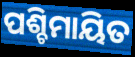
ପଶ୍ଚିମାୟିତ